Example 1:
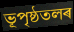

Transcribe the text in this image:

ভূপৃষ্ঠতলৰ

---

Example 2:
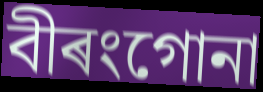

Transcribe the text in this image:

বীৰংগোনা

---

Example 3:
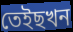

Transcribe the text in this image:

তেইছখন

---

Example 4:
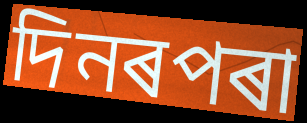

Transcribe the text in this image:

দিনৰপৰা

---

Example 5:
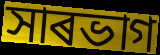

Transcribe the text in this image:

সাৰভাগ